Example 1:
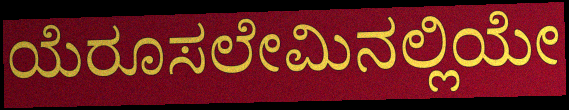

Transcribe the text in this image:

ಯೆರೂಸಲೇಮಿನಲ್ಲಿಯೇ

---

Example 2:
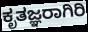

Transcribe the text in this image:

ಕೃತಜ್ಞರಾಗಿರಿ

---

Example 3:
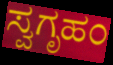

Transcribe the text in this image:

ಸ್ವಗೃಹಂ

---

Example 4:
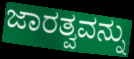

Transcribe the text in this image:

ಜಾರತ್ವವನ್ನು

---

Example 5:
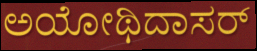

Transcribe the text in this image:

ಅಯೋಥಿದಾಸರ್